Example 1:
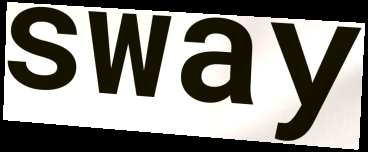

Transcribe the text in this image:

sway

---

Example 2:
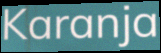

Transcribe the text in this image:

Karanja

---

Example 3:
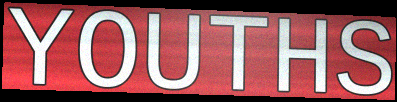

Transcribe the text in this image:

YOUTHS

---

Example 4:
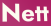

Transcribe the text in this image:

Nett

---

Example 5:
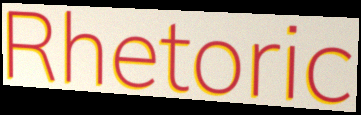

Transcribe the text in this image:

Rhetoric